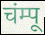
चंम्पू